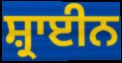
ਸ਼੍ਰਾਈਨ